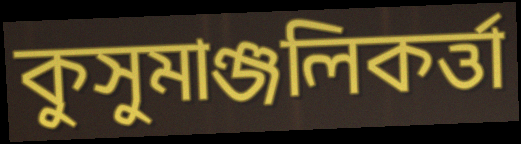
কুসুমাঞ্জলিকর্ত্তা